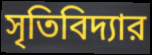
সৃতিবিদ্যার